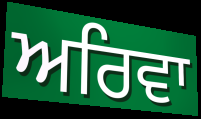
ਅਰਿਵਾ